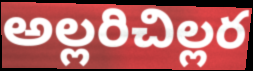
అల్లరిచిల్లర